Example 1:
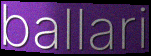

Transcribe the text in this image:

ballari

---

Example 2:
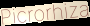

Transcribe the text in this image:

Picrorhiza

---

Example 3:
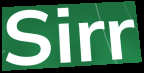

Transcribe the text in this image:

Sirr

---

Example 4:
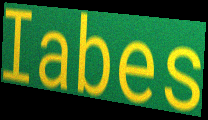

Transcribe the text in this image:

Iabes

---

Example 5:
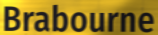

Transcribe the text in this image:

Brabourne